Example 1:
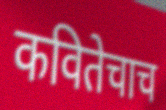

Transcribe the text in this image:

कवितेचाच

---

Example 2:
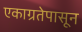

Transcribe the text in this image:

एकाग्रतेपासून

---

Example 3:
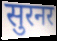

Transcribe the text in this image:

सुरनर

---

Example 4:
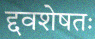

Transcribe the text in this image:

द्दवशेषतः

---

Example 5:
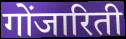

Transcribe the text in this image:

गोंजारिती